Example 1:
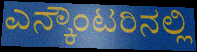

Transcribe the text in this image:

ಎನ್ಕೌಂಟರಿನಲ್ಲಿ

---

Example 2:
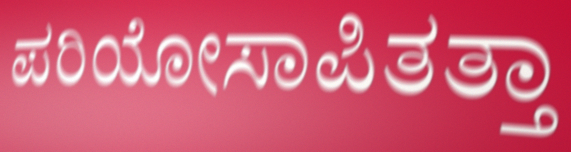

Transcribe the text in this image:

ಪರಿಯೋಸಾಪಿತತ್ತಾ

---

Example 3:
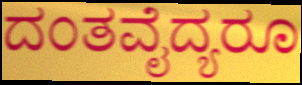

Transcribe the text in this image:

ದಂತವೈದ್ಯರೂ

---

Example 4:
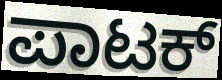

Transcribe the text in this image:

ಪಾಟಕ್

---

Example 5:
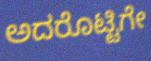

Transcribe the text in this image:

ಅದರೊಟ್ಟಿಗೇ